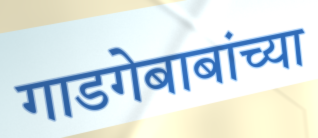
गाडगेबाबांच्या